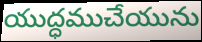
యుద్ధముచేయును